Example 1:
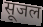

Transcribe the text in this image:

सूजल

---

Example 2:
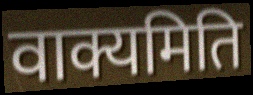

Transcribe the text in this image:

वाक्यमिति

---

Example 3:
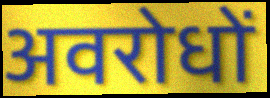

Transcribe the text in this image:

अवरोधों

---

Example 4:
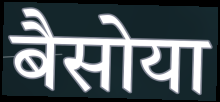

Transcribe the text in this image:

बैसोया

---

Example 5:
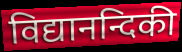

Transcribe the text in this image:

विद्यानन्दिकी